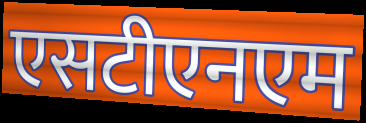
एसटीएनएम